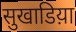
सुखाडिय़ा